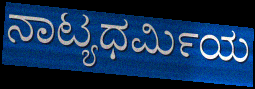
ನಾಟ್ಯಧರ್ಮಿಯ